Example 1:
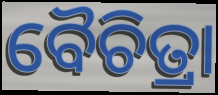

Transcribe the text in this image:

ବୈଚିତ୍ରା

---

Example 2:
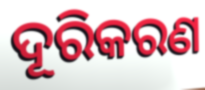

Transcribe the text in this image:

ଦୂରିକରଣ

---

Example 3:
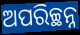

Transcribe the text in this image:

ଅପରିଚ୍ଛନ୍ନ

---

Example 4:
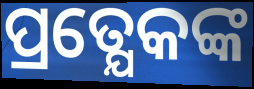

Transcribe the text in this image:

ପ୍ରତ୍ଯେକଙ୍କ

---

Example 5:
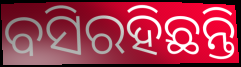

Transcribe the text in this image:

ବସିରହିଛନ୍ତି